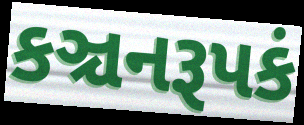
કઞ્ચનરૂપકં